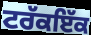
ਟਰੱਕਇੱਕ